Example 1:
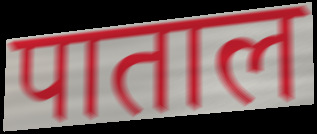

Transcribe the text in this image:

पाताल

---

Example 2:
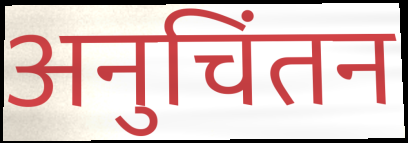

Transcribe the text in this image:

अनुचिंतन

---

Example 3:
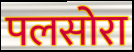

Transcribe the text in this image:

पलसोरा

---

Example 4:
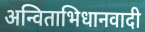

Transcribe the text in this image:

अन्विताभिधानवादी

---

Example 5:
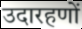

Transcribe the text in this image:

उदारहणों